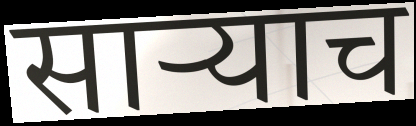
साऱ्याच